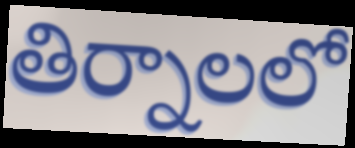
తిర్నాలలో